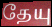
தேயு